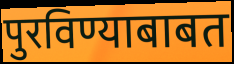
पुरविण्याबाबत